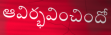
ఆవిర్భవించిందో